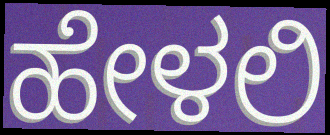
ಹೇಳಲಿ